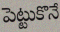
పెట్టుకొనే